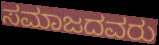
ಸಮಾಜದವರು